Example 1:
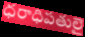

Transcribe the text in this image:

ధరాధిపతులై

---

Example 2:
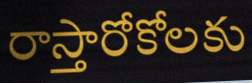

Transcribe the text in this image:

రాస్తారోకోలకు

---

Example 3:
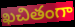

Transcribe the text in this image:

ఖచితంగా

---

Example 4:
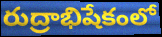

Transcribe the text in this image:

రుద్రాభిషేకంలో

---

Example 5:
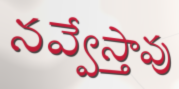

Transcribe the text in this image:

నవ్వేస్తావు